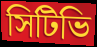
সিটিভি